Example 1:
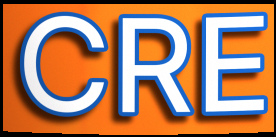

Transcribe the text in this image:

CRE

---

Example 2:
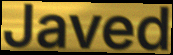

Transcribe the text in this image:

Javed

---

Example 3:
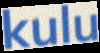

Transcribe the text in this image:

kulu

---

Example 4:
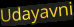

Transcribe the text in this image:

Udayavni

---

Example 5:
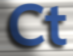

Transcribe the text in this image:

Ct